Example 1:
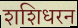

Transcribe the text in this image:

शशिधरन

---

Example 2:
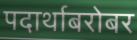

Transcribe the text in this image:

पदार्थाबरोबर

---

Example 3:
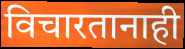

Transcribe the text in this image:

विचारतानाही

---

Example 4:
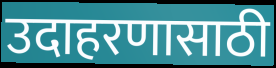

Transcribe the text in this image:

उदाहरणासाठी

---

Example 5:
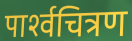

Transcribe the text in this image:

पार्श्वचित्रण